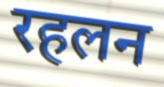
रहलन